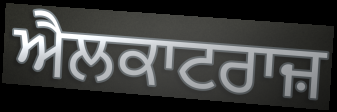
ਐਲਕਾਟਰਾਜ਼